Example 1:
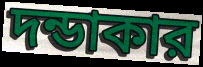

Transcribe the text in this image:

দন্ডাকার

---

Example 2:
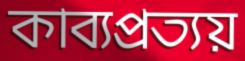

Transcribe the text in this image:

কাব্যপ্রত্যয়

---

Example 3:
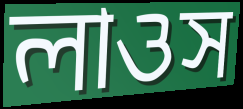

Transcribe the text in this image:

লাওস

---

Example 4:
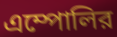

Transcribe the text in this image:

এম্পোলির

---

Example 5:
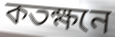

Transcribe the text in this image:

কতক্ষনে